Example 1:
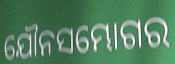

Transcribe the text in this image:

ଯୌନସମ୍ଭୋଗର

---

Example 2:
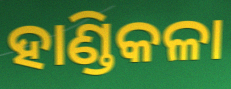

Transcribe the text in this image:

ହାଣ୍ଡିକଳା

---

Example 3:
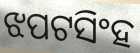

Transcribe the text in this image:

ଝପଟସିଂହ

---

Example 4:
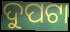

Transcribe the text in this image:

ଦୁପଟା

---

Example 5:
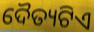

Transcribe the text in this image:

ଦୈତ୍ୟଟିଏ